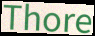
Thore